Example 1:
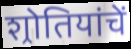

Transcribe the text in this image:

श्रोतियांचें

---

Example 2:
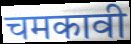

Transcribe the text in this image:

चमकावी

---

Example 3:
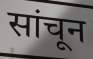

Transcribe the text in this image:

सांचून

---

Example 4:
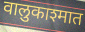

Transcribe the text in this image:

वालुकाश्मात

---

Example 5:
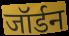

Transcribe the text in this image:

जॉर्डन